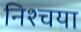
निश्चया